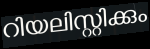
റിയലിസ്റ്റിക്കും